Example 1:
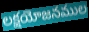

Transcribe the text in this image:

లక్షయోజనముల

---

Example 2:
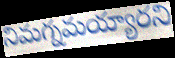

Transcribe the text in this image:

నిమగ్నమయ్యారని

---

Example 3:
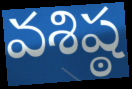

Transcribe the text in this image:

వశిష్ఠ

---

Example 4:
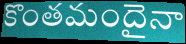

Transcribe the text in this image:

కొంతమందైనా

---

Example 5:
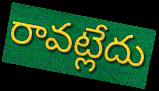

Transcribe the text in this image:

రావట్లేదు